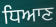
ਧਿਆਣ